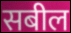
सबील